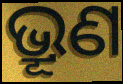
ଭ୍ରୂଣ